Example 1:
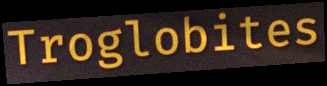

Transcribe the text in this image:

Troglobites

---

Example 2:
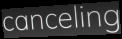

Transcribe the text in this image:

canceling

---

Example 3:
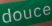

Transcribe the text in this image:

douce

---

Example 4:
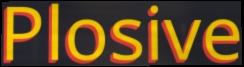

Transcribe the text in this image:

Plosive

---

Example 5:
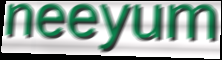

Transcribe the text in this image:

neeyum